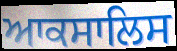
ਆਕਸਾਲਿਸ